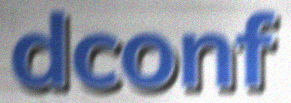
dconf